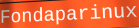
Fondaparinux